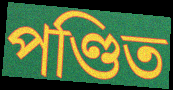
পণ্ডিত